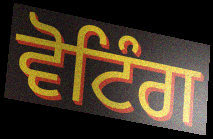
ਵੋਟਿੰਗ